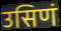
उसिणं